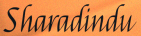
Sharadindu